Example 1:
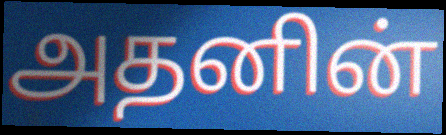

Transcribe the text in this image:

அதனின்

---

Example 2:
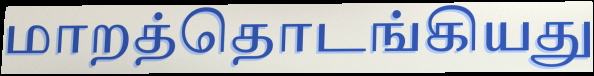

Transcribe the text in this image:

மாறத்தொடங்கியது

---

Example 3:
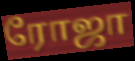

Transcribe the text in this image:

ரோஜா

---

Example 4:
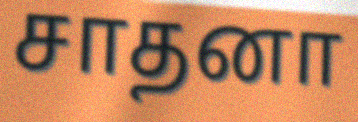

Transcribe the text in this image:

சாதனா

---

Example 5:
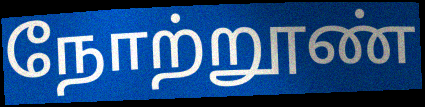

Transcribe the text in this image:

நோற்றூண்